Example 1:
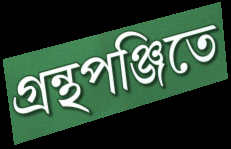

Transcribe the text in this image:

গ্রন্থপঞ্জিতে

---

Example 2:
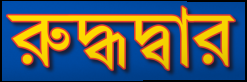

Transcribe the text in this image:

রুদ্ধদ্বার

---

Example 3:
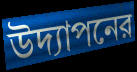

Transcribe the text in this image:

উদ্যাপনের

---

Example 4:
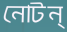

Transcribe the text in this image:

নোটন্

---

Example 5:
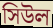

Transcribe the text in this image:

সিউল